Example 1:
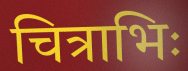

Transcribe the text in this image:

चित्राभिः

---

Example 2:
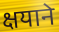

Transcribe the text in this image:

क्षयाने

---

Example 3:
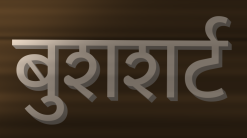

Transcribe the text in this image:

बुशशर्ट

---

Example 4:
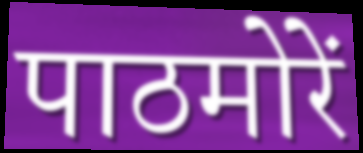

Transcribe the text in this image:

पाठमोरें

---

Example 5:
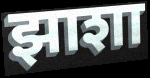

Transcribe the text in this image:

झाशा